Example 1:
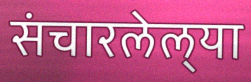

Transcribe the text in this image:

संचारलेल्या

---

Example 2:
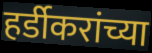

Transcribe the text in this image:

हर्डीकरांच्या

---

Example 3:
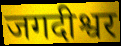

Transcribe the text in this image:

जगदीश्वर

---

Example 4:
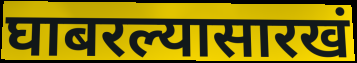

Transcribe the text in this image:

घाबरल्यासारखं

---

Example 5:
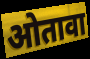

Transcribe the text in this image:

ओतावा